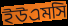
ইউএমসি